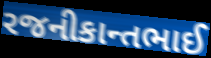
રજનીકાન્તભાઈ